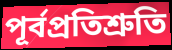
পূর্বপ্রতিশ্রুতি